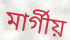
মার্গীয়